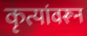
कृत्यांवरून